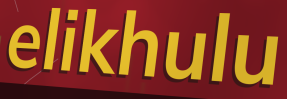
elikhulu